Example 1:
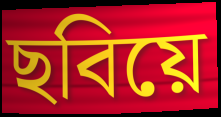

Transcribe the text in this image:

ছবিয়ে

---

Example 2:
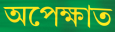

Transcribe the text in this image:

অপেক্ষাত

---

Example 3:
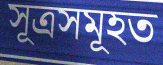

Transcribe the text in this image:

সূত্ৰসমূহত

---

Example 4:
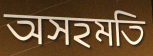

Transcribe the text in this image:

অসহমতি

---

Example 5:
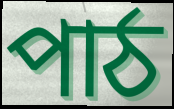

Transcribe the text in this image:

পাঠ